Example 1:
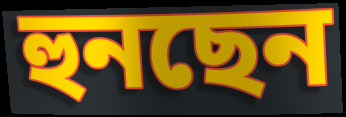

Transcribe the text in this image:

হুনছেন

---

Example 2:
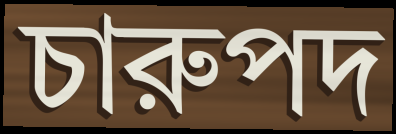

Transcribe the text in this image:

চারুপদ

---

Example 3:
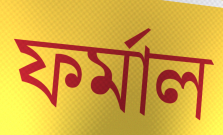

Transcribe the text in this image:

ফর্মাল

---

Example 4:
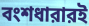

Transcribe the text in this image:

বংশধারারই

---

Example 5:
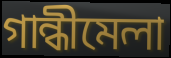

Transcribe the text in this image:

গান্ধীমেলা